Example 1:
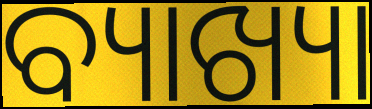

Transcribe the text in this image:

ବ୍ୟାଖ୍ୟା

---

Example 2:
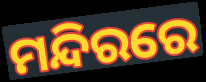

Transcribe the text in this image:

ମନ୍ଦିରରେ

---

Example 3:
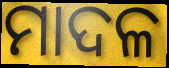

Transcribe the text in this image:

ମାଦଳ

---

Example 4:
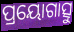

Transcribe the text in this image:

ପ୍ରୟୋଗାତ୍ସୁ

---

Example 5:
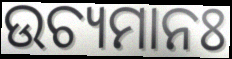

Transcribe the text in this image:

ଉଚ୍ୟମାନଃ